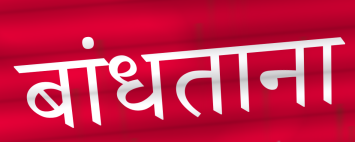
बांधताना